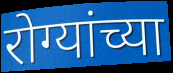
रोग्यांच्या